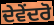
ਦੇਵੇਂਦਰੋ